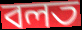
বলত